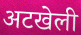
अटखेली